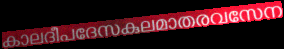
കാലദീപദേസകുലമാതരവസേന